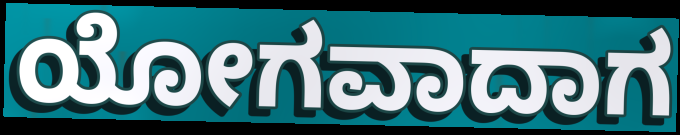
ಯೋಗವಾದಾಗ